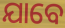
ଯାବେ